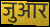
जुआर